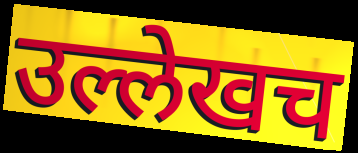
उल्लेखच